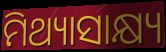
ମିଥ୍ୟାସାକ୍ଷ୍ୟ